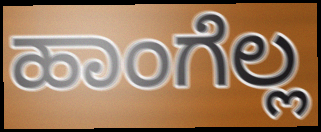
ಹಾಂಗೆಲ್ಲ